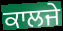
ਕਾਲਜੇ